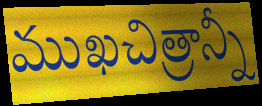
ముఖచిత్రాన్నీ